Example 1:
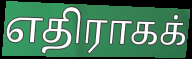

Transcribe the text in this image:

எதிராகக்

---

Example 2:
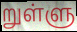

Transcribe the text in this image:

றுள்ளு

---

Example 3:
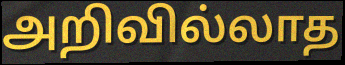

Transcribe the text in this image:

அறிவில்லாத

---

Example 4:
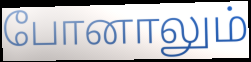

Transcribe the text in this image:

போனாலும்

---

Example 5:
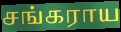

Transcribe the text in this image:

சங்கராய